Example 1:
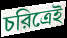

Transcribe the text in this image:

চরিত্রেই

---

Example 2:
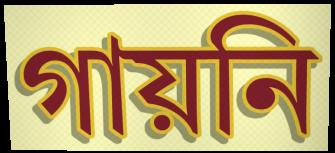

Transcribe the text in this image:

গায়নি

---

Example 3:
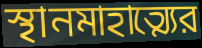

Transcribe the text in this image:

স্থানমাহাত্ম্যের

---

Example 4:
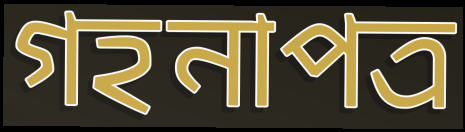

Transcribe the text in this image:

গহনাপত্র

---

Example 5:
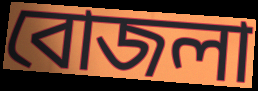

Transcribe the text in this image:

বোজলা